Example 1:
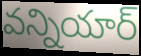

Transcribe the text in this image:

వన్నియార్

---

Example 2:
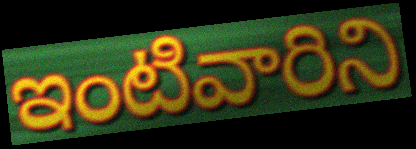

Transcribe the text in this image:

ఇంటివారిని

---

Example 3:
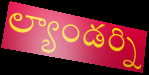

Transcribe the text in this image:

ల్యాండర్ని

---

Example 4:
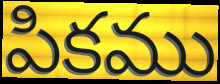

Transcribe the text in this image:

పికము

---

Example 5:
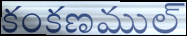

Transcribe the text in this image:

కంకణముల్